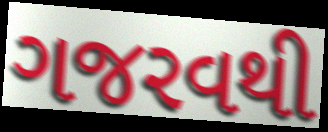
ગજરવથી